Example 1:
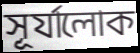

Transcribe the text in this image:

সূর্যালোক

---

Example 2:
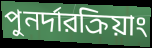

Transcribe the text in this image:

পুনর্দারক্রিয়াং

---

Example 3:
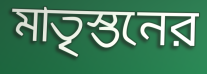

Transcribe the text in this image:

মাতৃস্তনের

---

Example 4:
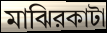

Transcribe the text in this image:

মাঝিরকাটা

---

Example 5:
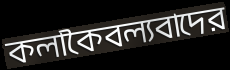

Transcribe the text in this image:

কলাকৈবল্যবাদের